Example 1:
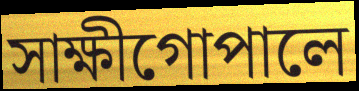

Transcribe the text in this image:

সাক্ষীগোপালে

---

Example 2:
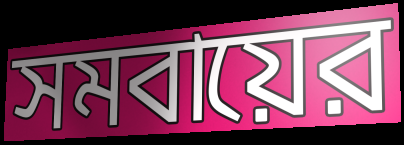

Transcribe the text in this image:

সমবায়ের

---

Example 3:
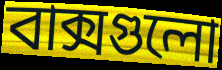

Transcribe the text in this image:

বাক্সগুলো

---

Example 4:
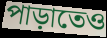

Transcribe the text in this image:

পাড়াতেও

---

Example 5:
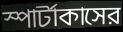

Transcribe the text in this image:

স্পার্টাকাসের